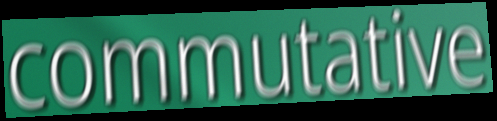
commutative